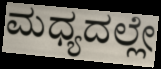
ಮಧ್ಯದಲ್ಲೇ